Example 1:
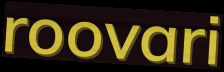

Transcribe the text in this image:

roovari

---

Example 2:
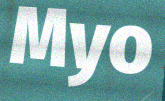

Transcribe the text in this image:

Myo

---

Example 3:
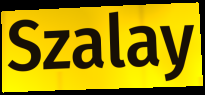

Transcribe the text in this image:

Szalay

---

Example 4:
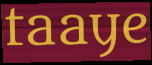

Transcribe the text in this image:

taaye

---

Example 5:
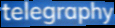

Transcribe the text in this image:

telegraphy